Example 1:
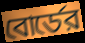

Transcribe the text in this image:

বোর্ডের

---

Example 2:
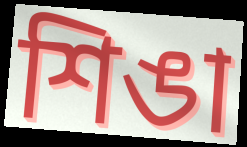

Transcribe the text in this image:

শিঙা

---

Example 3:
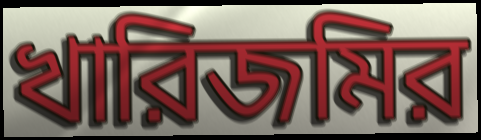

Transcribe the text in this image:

খারিজমির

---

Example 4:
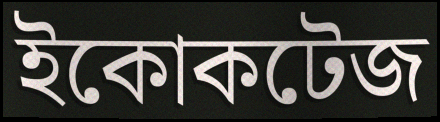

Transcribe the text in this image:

ইকোকটেজ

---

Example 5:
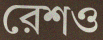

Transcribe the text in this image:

রেশও